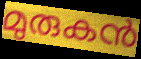
മുരുകൻ